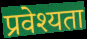
प्रवेश्यता